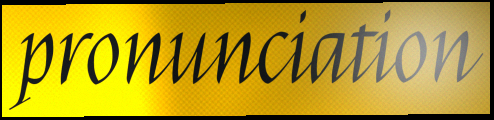
pronunciation